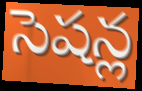
సెషన్ల